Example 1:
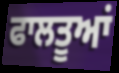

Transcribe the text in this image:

ਫਾਲਤੂਆਂ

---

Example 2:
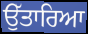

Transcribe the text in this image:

ਉੱਤਾਰਿਆ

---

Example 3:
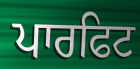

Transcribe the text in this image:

ਪਾਰਫਿਟ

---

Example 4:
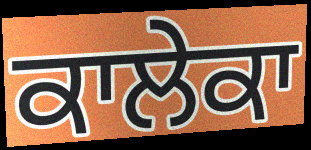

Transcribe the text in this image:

ਕਾਲੇਕਾ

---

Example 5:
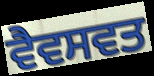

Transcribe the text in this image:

ਵੈਵਸਵਤ